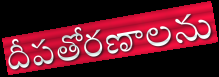
దీపతోరణాలను